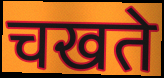
चखते